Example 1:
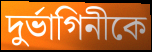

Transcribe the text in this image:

দুর্ভাগিনীকে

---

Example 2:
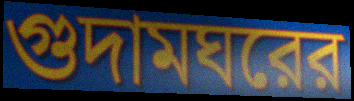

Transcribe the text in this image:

গুদামঘরের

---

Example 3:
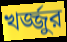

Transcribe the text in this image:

খর্জ্জুর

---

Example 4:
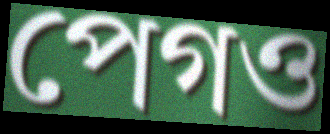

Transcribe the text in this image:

পেগও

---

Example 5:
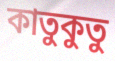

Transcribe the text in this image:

কাতুকুতু